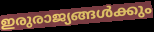
ഇരുരാജ്യങ്ങൾക്കും